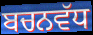
ਬਚਨਵੱਧ